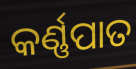
କର୍ଣ୍ଣପାତ